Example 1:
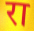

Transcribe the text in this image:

रा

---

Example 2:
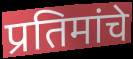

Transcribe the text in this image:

प्रतिमांचे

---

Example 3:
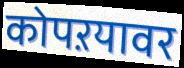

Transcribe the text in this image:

कोपऱयावर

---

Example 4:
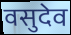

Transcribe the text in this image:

वसुदेव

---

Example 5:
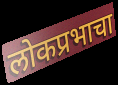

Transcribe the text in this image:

लोकप्रभाचा